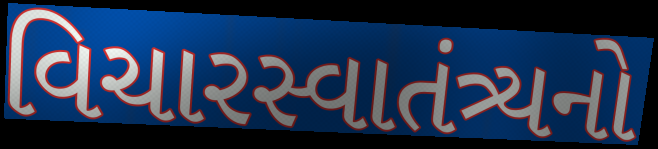
વિચારસ્વાતંત્ર્યનો